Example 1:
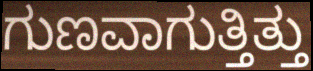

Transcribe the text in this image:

ಗುಣವಾಗುತ್ತಿತ್ತು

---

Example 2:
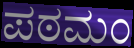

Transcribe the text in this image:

ಪಠಮಂ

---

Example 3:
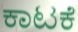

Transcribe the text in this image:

ಕಾಟಕೆ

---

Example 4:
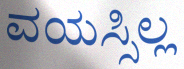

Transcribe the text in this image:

ವಯಸ್ಸಿಲ್ಲ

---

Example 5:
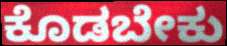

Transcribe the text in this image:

ಕೊಡಬೇಕು